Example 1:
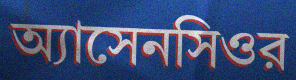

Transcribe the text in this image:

অ্যাসেনসিওর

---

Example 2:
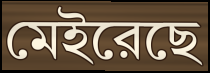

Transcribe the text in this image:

মেইরেছে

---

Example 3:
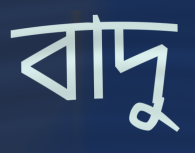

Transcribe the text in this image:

বাদু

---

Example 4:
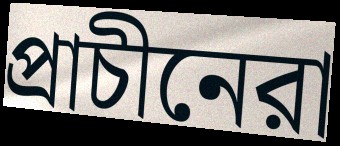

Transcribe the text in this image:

প্রাচীনেরা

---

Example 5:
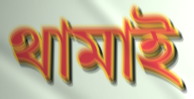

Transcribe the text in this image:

থামাই